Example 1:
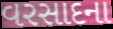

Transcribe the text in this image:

વરસાદના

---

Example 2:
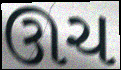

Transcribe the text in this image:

ઊચ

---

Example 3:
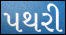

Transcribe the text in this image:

પથરી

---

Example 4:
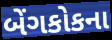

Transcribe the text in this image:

બેંગકોકના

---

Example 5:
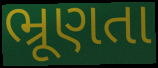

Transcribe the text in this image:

ભ્રૂણતા